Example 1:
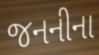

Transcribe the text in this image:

જનનીના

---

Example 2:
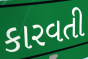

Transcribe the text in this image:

કારવતી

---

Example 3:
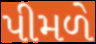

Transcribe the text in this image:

પીમળે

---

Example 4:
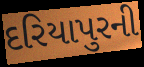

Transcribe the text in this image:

દરિયાપુરની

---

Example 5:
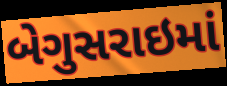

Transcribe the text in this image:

બેગુસરાઇમાં